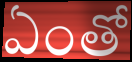
ఏంతో